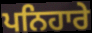
ਪਨਿਹਾਰੇ